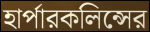
হার্পারকলিন্সের